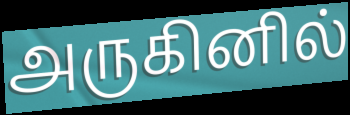
அருகினில்